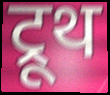
ट्रूथ